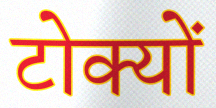
टोक्यों